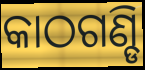
କାଠଗଣ୍ଡି